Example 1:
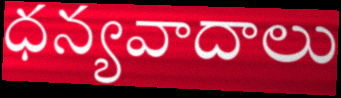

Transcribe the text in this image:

ధన్యవాదాలు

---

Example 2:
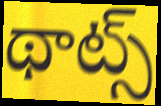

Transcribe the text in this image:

థాట్స్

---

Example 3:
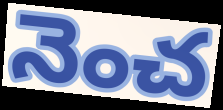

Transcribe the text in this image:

నెంచ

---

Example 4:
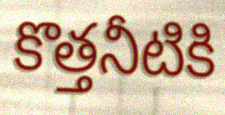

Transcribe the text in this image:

కొత్తనీటికి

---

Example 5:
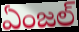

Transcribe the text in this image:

ఏంజల్